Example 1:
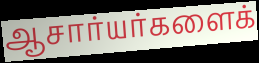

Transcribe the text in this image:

ஆசார்யர்களைக்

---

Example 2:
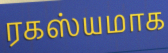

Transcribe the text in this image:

ரகஸ்யமாக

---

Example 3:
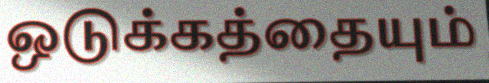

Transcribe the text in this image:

ஒடுக்கத்தையும்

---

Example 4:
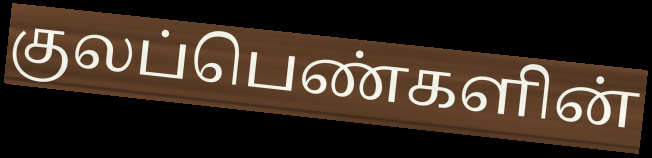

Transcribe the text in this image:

குலப்பெண்களின்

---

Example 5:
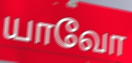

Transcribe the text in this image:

யாவோ